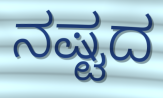
ನಷ್ಟದ